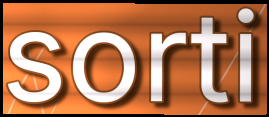
sorti